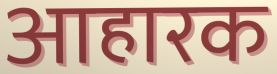
आहारक